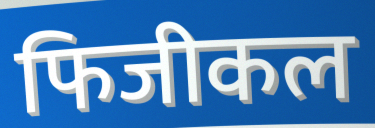
फिजीकल